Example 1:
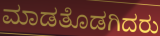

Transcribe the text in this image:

ಮಾಡತೊಡಗಿದರು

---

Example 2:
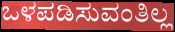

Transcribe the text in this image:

ಒಳಪಡಿಸುವಂತಿಲ್ಲ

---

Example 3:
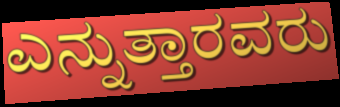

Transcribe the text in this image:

ಎನ್ನುತ್ತಾರವರು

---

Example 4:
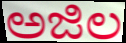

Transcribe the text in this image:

ಅಜಿಲ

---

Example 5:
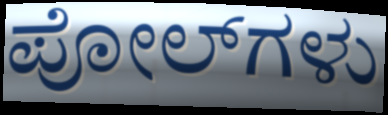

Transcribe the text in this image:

ಪೋಲ್‌ಗಳು